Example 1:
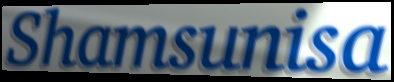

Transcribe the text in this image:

Shamsunisa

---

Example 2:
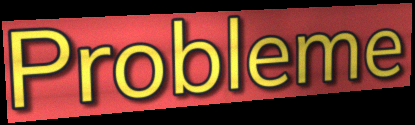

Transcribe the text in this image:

Probleme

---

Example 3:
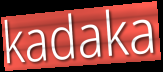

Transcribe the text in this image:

kadaka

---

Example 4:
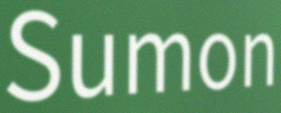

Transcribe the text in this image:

Sumon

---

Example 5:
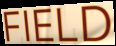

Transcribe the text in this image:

FIELD